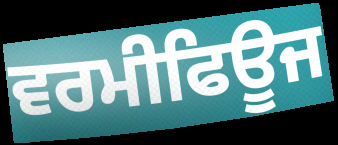
ਵਰਮੀਫਿਊਜ